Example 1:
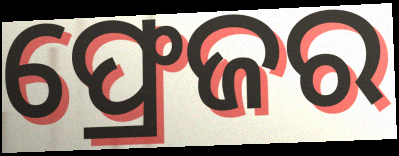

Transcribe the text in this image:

ଫ୍ରେଜର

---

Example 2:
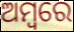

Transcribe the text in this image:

ଅମ୍ବରେ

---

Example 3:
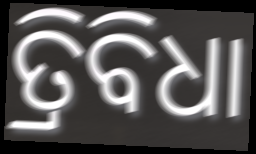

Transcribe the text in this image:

ତ୍ରିବିଧା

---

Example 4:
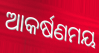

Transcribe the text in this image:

ଆକର୍ଷଣମୟ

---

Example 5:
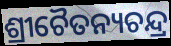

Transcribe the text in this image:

ଶ୍ରୀଚୈତନ୍ୟଚନ୍ଦ୍ର